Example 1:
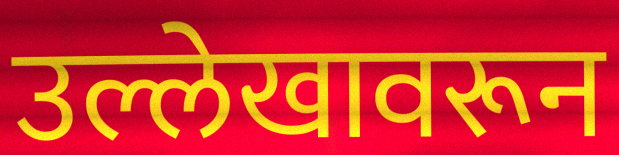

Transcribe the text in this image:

उल्लेखावरून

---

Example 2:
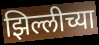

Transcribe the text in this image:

झिल्लीच्या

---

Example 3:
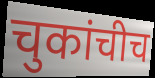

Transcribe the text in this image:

चुकांचीच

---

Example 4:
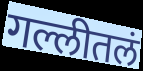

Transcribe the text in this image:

गल्लीतलं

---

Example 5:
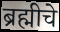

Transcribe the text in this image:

ब्रह्मीचे